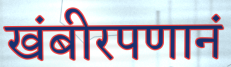
खंबीरपणानं